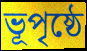
ভূপৃষ্ঠে